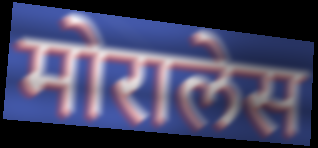
मोरालेस